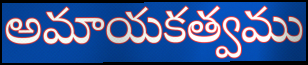
అమాయకత్వము